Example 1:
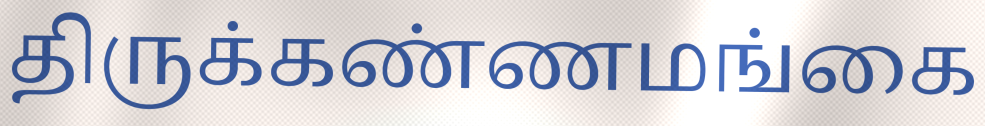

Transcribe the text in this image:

திருக்கண்ணமங்கை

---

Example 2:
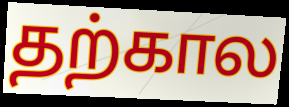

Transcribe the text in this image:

தற்கால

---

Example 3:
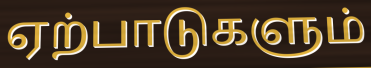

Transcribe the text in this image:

ஏற்பாடுகளும்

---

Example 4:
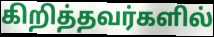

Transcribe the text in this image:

கிறித்தவர்களில்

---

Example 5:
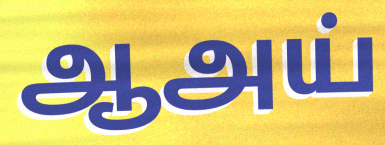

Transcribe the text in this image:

ஆஅய்